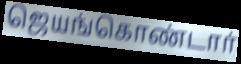
ஜெயங்கொண்டார்